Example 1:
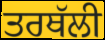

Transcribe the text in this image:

ਤਰਥੱਲੀ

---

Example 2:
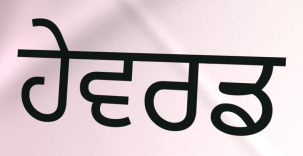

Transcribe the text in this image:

ਹੇਵਰਡ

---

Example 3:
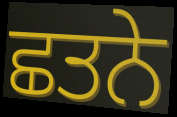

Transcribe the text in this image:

ਛਤਨੇ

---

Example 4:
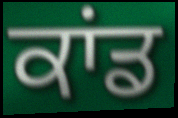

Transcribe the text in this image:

ਕਾਂਡ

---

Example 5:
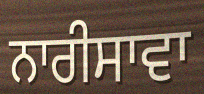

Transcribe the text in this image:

ਨਾਰੀਸਾਵਾ